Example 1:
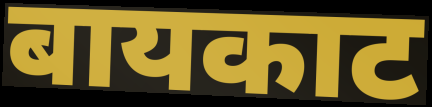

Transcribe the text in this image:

बायकाट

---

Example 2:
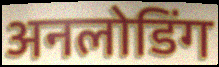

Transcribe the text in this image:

अनलोडिंग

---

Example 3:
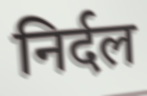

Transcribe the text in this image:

निर्दल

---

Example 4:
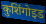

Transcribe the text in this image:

कुशिंगोइड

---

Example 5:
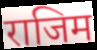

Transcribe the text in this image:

राजिम